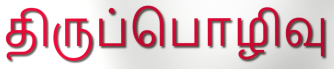
திருப்பொழிவு